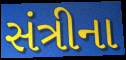
સંત્રીના